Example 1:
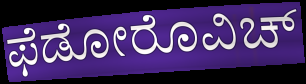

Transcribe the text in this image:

ಫೆಡೋರೊವಿಚ್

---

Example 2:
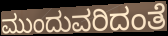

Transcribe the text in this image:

ಮುಂದುವರಿದಂತೆ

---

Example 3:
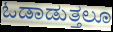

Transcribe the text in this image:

ಓಡಾಡುತ್ತಲೂ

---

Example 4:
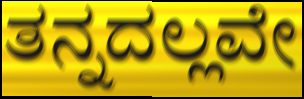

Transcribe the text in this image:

ತನ್ನದಲ್ಲವೇ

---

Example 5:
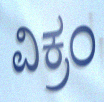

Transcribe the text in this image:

ವಿಕ್ರಂ